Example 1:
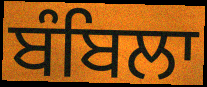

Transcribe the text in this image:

ਬੰਬਿਲਾ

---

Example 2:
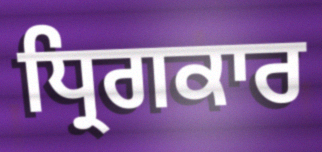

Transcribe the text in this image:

ਧ੍ਰਿਗਕਾਰ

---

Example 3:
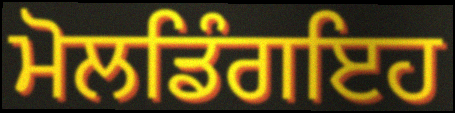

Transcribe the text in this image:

ਮੋਲਡਿੰਗਇਹ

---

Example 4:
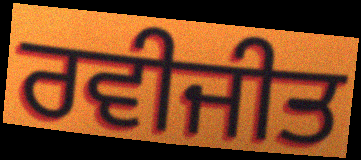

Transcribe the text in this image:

ਰਵੀਜੀਤ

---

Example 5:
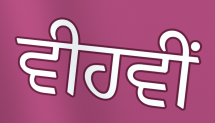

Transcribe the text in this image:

ਵੀਹਵੀਂ